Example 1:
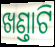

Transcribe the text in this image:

ଖଣ୍ତାଟି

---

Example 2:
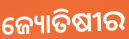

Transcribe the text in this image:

ଜ୍ୟୋତିଷୀର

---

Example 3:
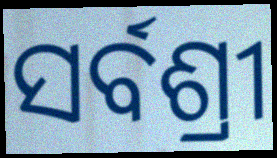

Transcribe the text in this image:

ସର୍ବଶ୍ରୀ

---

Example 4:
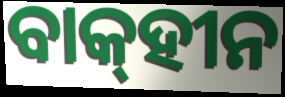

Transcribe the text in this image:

ବାକ୍‌ହୀନ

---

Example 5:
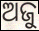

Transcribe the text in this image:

ଅଜୁ